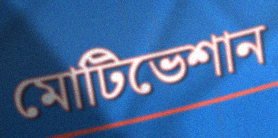
মোটিভেশান